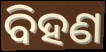
ବିହଣ